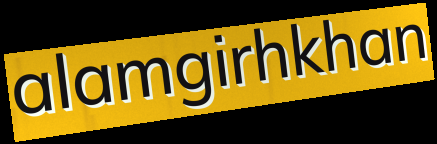
alamgirhkhan